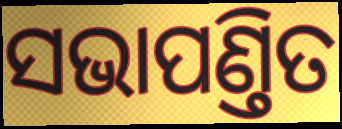
ସଭାପଣ୍ତିତ